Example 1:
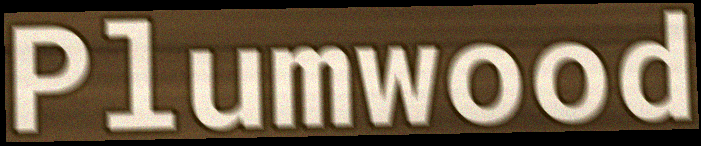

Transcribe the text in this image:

Plumwood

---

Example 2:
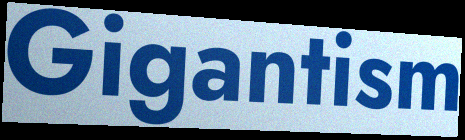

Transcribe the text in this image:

Gigantism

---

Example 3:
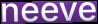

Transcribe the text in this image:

neeve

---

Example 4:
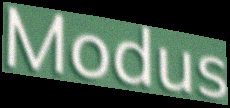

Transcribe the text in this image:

Modus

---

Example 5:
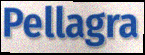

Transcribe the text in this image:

Pellagra